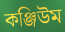
কঞ্জিউম